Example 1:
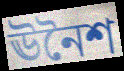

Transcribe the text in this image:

ঊনৈশ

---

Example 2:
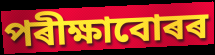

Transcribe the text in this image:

পৰীক্ষাবোৰৰ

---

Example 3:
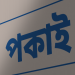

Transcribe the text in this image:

পকাই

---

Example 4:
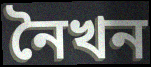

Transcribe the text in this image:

নৈখন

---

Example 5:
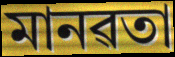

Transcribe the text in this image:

মানৱতা